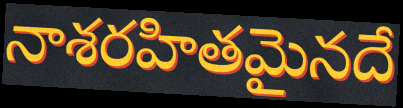
నాశరహితమైనదే